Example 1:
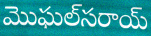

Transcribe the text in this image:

మొఘల్‌సరాయ్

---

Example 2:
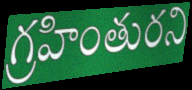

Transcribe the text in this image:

గ్రహింతురని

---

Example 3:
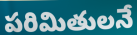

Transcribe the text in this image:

పరిమితులనే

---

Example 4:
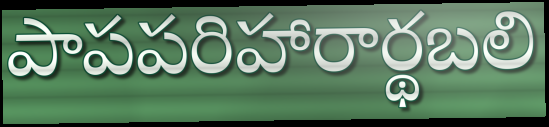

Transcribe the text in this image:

పాపపరిహారార్థబలి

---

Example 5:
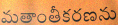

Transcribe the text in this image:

మతాంతీకరణను